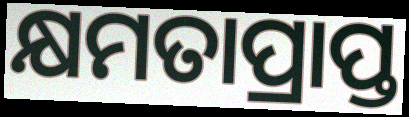
କ୍ଷମତାପ୍ରାପ୍ତ